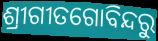
ଶ୍ରୀଗୀତଗୋବିନ୍ଦରୁ